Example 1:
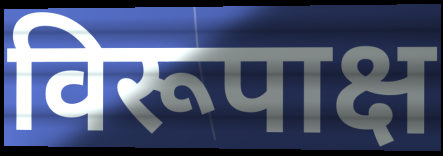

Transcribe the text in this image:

विरूपाक्ष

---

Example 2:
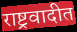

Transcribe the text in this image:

राष्ट्रवादीत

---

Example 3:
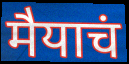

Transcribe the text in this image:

मैयाचं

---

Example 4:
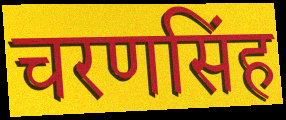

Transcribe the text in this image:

चरणसिंह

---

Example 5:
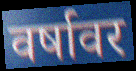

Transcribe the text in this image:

वर्षावर